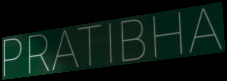
PRATIBHA